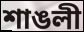
শাঙলী